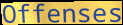
Offenses